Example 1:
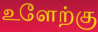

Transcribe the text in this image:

உளேற்கு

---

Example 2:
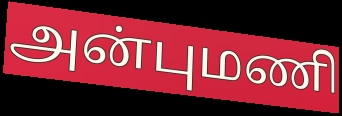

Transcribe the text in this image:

அன்புமணி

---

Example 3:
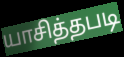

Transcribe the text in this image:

யாசித்தபடி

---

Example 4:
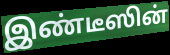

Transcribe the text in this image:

இண்டீஸின்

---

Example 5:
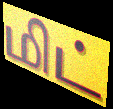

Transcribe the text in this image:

மிட்